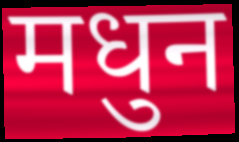
मधुन